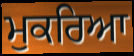
ਮੁਕਰਿਆ